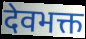
देवभक्त